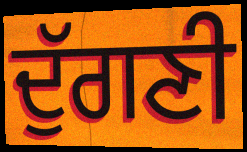
ਦੁੱਗਣੀ